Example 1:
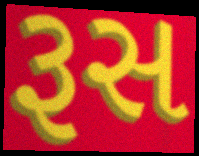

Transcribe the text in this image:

રૂસ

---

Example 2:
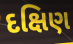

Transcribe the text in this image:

દક્ષિણ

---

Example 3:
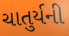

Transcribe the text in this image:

ચાતુર્યની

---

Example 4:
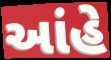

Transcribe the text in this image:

આંહે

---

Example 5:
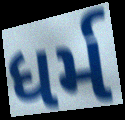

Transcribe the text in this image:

ધર્મ